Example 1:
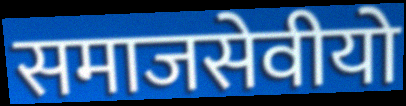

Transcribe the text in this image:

समाजसेवीयो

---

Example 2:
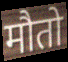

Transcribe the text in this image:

मौतो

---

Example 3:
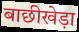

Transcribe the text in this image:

बाछीखेड़ा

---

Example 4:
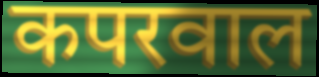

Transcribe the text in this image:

कपरवाल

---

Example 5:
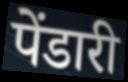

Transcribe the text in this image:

पेंडारी